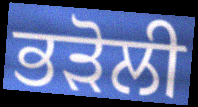
ਭੜੋਲੀ